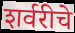
शर्वरीचे